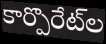
కార్పొరేట్‌ల